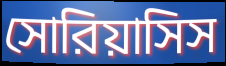
সোরিয়াসিস